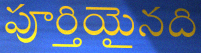
పూర్తియైనది